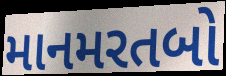
માનમરતબો